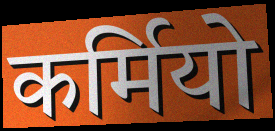
कर्मियो